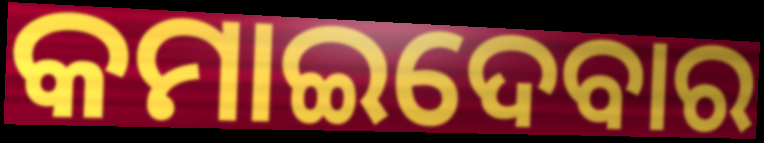
କମାଇଦେବାର